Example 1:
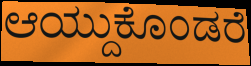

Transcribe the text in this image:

ಆಯ್ದುಕೊಂಡರೆ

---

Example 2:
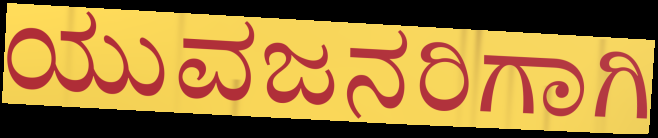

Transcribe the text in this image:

ಯುವಜನರಿಗಾಗಿ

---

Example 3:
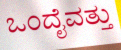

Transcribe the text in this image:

ಒಂದೈವತ್ತು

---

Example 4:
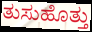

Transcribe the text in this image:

ತುಸುಹೊತ್ತು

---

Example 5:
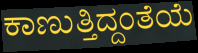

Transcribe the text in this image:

ಕಾಣುತ್ತಿದ್ದಂತೆಯೆ